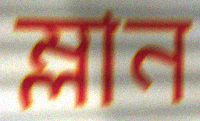
ম্লান